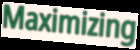
Maximizing